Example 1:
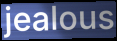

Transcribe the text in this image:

jealous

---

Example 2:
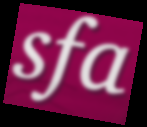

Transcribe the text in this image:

sfa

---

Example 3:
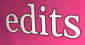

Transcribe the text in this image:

edits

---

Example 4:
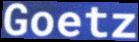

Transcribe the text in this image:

Goetz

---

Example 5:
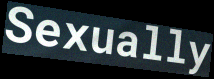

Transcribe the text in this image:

Sexually